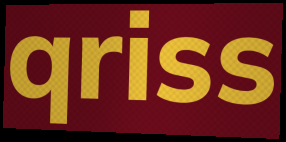
qriss